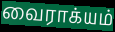
வைராக்யம்